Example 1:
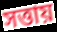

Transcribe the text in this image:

সত্তায়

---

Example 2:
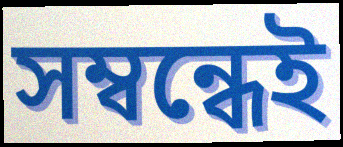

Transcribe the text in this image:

সম্বন্ধেই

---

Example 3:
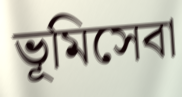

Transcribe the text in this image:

ভূমিসেবা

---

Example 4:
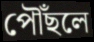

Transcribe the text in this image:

পৌঁছলে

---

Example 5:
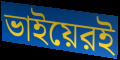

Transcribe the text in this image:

ভাইয়েরই